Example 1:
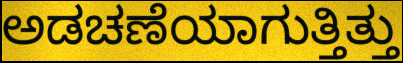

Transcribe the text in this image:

ಅಡಚಣೆಯಾಗುತ್ತಿತ್ತು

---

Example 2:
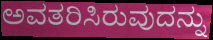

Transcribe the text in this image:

ಅವತರಿಸಿರುವುದನ್ನು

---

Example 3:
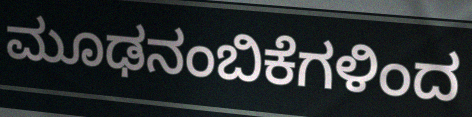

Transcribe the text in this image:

ಮೂಢನಂಬಿಕೆಗಳಿಂದ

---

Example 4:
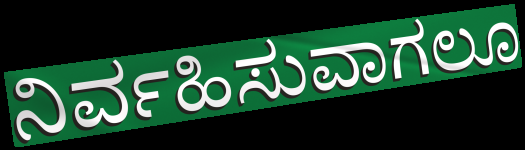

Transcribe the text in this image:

ನಿರ್ವಹಿಸುವಾಗಲೂ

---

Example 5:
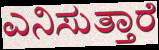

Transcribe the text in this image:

ಎನಿಸುತ್ತಾರೆ